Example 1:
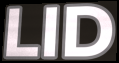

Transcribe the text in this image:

LID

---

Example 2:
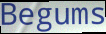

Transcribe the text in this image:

Begums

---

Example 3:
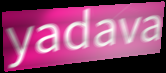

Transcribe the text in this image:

yadava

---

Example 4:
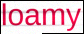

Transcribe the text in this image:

loamy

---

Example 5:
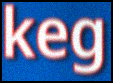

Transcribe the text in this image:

keg